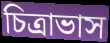
চিত্রাভাস